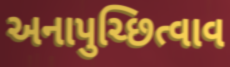
અનાપુચ્છિત્વાવ